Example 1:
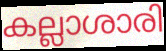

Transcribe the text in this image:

കല്ലാശാരി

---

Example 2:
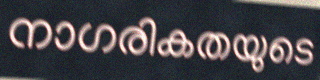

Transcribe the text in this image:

നാഗരികതയുടെ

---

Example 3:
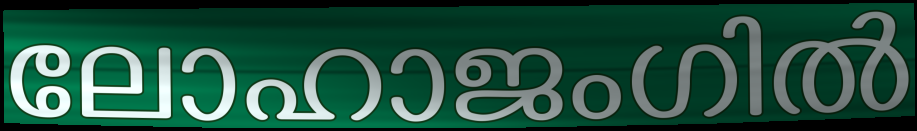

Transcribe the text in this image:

ലോഹാജംഗിൽ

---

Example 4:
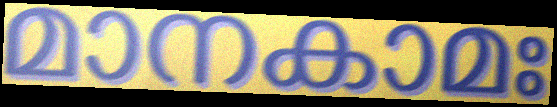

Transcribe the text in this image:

മാനകാമഃ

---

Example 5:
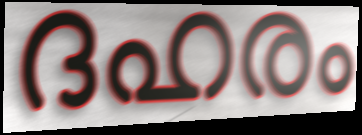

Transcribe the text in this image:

ദഹരം